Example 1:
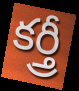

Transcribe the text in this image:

కర్త్రీ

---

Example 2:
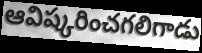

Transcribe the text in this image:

ఆవిష్కరించగలిగాడు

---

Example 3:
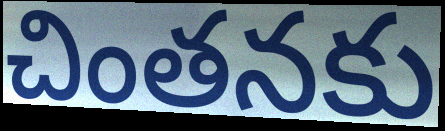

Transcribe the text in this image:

చింతనకు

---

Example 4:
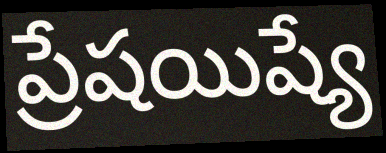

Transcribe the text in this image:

ప్రేషయిష్యే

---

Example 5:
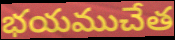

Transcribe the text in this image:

భయముచేత